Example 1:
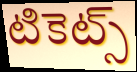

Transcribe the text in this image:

టికెట్స్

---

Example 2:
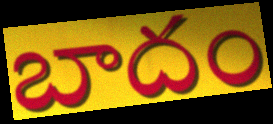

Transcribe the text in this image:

బాదం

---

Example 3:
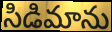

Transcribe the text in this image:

సిడిమాను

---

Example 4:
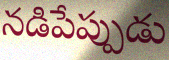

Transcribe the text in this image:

నడిపేప్పుడు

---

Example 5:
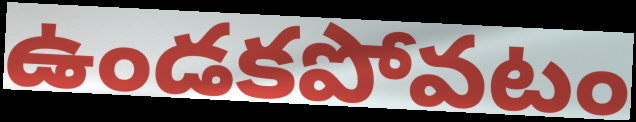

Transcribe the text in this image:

ఉండకపోవటం